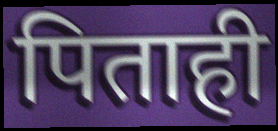
पिताही